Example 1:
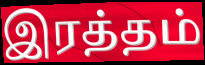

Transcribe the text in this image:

இரத்தம்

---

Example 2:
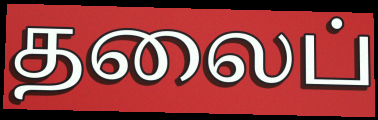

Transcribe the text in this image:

தலைப்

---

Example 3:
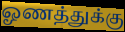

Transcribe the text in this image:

ஓணத்துக்கு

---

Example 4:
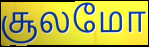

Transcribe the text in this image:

சூலமோ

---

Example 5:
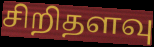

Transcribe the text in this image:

சிறிதளவு